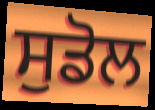
ਸੁਡੋਲ